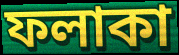
ফলাকা